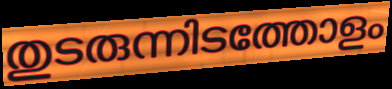
തുടരുന്നിടത്തോളം